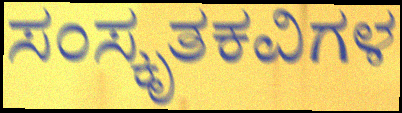
ಸಂಸ್ಕೃತಕವಿಗಳ